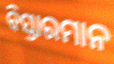
ବିସ୍ତାରମାନ